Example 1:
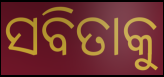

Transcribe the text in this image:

ସବିତାକୁ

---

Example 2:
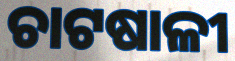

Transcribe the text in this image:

ଚାଟଷାଳୀ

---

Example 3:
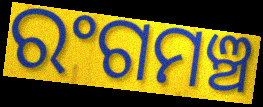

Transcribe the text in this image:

ରଂଗମଞ୍ଚ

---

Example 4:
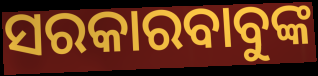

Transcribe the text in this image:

ସରକାରବାବୁଙ୍କ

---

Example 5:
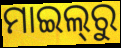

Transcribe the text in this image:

ମାଇଲ୍‌ରୁ